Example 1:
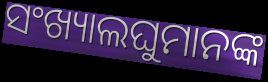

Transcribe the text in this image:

ସଂଖ୍ୟାଲଘୁମାନଙ୍କ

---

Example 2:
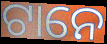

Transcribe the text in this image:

ଟାନେ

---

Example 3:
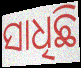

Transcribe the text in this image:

ସାଧିଛି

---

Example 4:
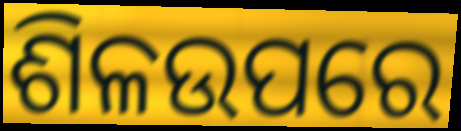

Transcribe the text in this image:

ଶିଳଉପରେ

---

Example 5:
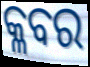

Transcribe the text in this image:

କ୍ଳବର